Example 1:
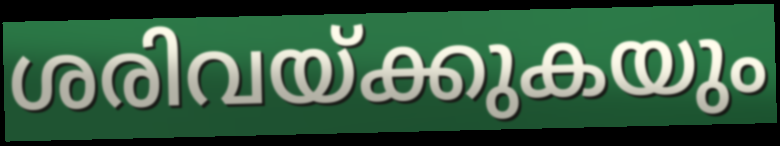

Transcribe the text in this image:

ശരിവയ്ക്കുകയും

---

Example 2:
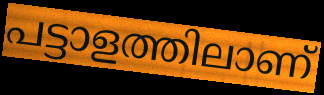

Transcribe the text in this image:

പട്ടാളത്തിലാണ്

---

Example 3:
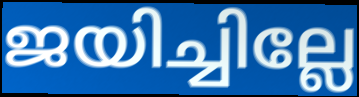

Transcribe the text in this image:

ജയിച്ചില്ലേ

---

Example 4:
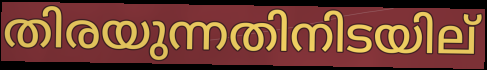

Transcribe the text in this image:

തിരയുന്നതിനിടയില്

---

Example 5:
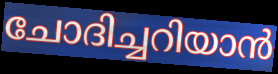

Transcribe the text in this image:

ചോദിച്ചറിയാൻ